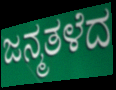
ಜನ್ಮತಳೆದ